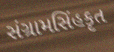
સંગ્રામસિંહકૃત